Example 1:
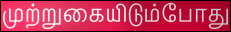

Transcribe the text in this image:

முற்றுகையிடும்போது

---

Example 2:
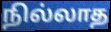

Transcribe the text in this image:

நில்லாத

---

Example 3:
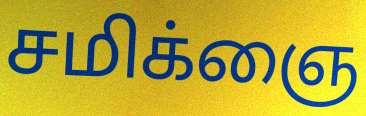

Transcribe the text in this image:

சமிக்ஞை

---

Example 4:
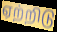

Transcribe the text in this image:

ஏற்றிடு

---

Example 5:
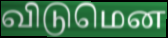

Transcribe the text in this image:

விடுமென